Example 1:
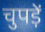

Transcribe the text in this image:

चुपड़ें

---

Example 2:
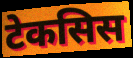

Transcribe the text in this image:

टेकसिस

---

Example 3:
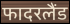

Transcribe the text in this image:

फादरलैंड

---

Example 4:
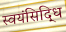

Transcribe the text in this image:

स्वयंसिद्धि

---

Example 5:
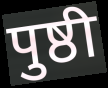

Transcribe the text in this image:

पुष्ठी